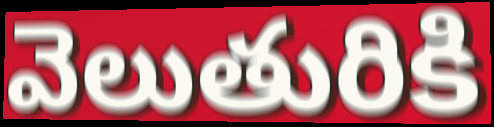
వెలుతురికి